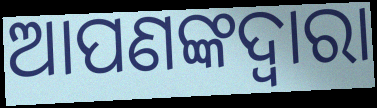
ଆପଣଙ୍କଦ୍ବାରା